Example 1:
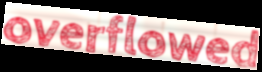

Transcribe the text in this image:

overflowed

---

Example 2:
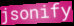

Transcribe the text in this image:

jsonify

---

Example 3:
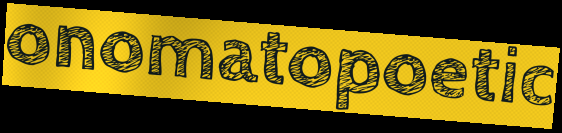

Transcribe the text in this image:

onomatopoetic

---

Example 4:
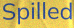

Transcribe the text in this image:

Spilled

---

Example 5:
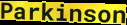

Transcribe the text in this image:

Parkinson